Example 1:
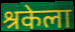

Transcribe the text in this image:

श्रकेला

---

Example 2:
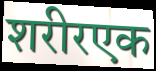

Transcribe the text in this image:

शरीरएक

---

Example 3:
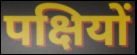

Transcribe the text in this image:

पक्षियों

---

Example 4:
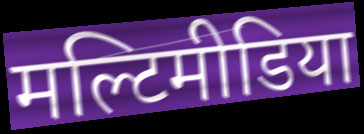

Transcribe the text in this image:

मल्टिमीडिया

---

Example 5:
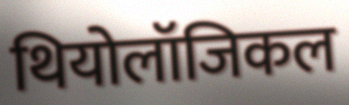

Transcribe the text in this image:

थियोलॉजिकल